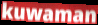
kuwaman